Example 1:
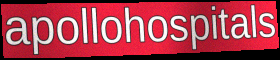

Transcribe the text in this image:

apollohospitals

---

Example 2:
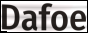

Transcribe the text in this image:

Dafoe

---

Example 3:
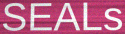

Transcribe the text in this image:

SEALs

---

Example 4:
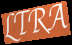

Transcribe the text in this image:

LTRA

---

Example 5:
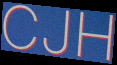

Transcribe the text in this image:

CJH